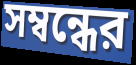
সম্বন্ধের